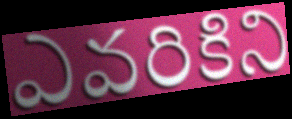
ఎవరికిని